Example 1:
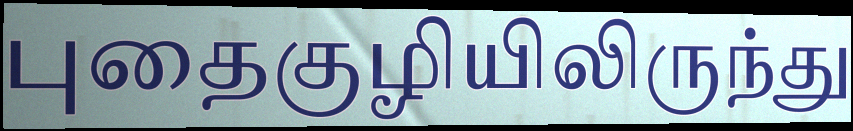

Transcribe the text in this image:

புதைகுழியிலிருந்து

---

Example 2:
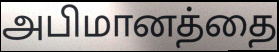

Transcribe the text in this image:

அபிமானத்தை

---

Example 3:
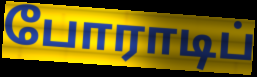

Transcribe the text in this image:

போராடிப்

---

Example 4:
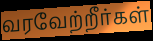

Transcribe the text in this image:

வரவேற்றீர்கள்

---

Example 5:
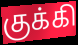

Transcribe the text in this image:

குக்கி